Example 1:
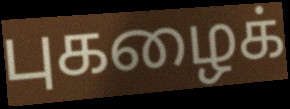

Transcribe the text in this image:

புகழைக்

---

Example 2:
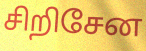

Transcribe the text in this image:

சிறிசேன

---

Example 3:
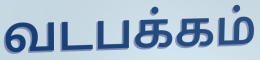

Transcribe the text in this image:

வடபக்கம்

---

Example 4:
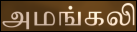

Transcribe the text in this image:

அமங்கலி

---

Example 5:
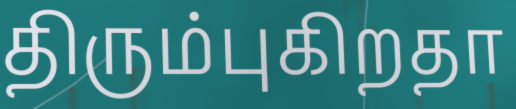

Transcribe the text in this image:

திரும்புகிறதா